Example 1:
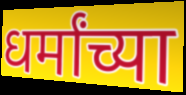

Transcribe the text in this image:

धर्मांच्या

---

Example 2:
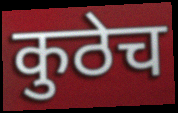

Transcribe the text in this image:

कुठेच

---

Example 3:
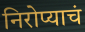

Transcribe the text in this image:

निरोप्याचं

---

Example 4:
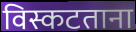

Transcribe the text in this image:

विस्कटताना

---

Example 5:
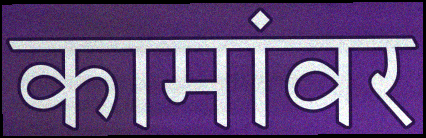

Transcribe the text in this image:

कामांवर